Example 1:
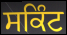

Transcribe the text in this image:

ਸਕਿੰਟ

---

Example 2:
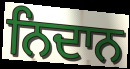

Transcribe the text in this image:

ਨਿਦਾਨ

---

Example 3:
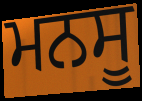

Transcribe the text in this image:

ਮਨਸੂ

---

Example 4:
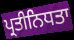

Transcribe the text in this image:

ਪ੍ਰਤੀਨਿਧਤਾ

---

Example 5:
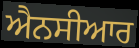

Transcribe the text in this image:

ਐਨਸੀਆਰ